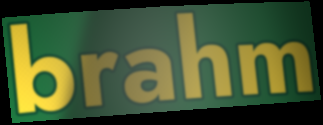
brahm